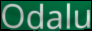
Odalu